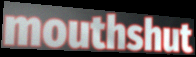
mouthshut